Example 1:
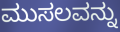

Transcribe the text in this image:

ಮುಸಲವನ್ನು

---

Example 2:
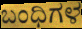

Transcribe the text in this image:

ಬಂಧಿಗಳ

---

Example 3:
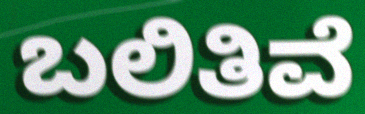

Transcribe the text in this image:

ಬಲಿತಿವೆ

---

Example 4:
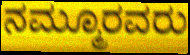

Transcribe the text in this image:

ನಮ್ಮೂರವರು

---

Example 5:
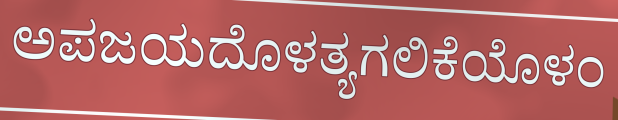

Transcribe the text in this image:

ಅಪಜಯದೊಳತ್ಯಗಲಿಕೆಯೊಳಂ